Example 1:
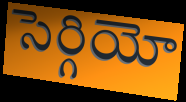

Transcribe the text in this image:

సెర్గియో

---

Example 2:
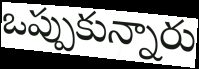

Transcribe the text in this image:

ఒప్పుకున్నారు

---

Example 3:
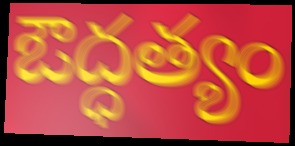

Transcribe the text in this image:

ఔద్ధత్యం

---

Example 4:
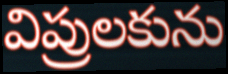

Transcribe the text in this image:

విప్రులకును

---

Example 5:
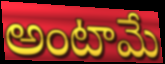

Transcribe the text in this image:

అంటామే